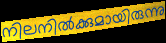
നിലനിൽക്കുമായിരുന്നു